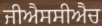
ਜੀਐਸਸੀਐਚ